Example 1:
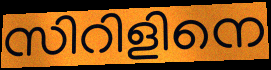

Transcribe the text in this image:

സിറിളിനെ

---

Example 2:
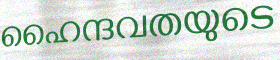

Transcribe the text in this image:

ഹൈന്ദവതയുടെ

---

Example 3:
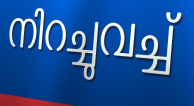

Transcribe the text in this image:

നിറച്ചുവച്ച്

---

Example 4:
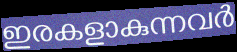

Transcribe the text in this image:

ഇരകളാകുന്നവർ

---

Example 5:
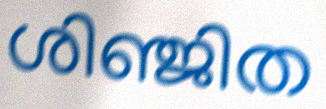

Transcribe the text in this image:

ശിഞ്ജിത